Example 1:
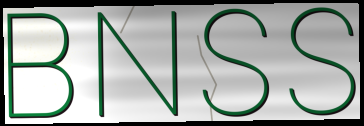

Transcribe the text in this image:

BNSS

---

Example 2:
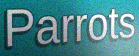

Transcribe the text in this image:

Parrots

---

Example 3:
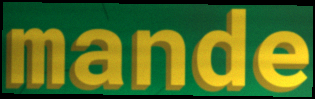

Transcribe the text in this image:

mande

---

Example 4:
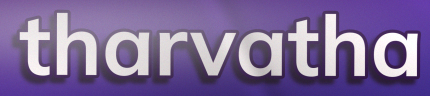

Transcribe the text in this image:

tharvatha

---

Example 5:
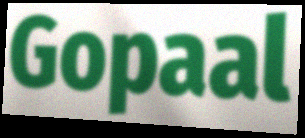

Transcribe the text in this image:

Gopaal